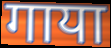
गाया